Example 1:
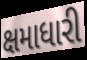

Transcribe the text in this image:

ક્ષમાધારી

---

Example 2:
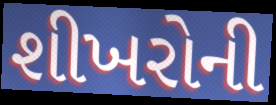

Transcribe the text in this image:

શીખરોની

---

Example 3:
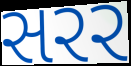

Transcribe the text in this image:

સરર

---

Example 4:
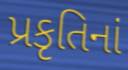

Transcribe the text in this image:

પ્રકૃતિનાં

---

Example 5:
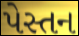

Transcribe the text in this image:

પેસ્તન